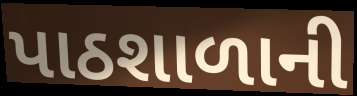
પાઠશાળાની